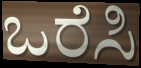
ಒರೆಸಿ